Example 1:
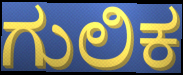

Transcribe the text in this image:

ಗುಲಿಕ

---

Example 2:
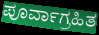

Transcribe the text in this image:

ಪೂರ್ವಾಗ್ರಹಿತ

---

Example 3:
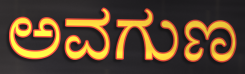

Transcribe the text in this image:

ಅವಗುಣ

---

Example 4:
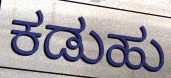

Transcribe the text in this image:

ಕಡುಹು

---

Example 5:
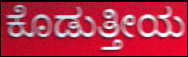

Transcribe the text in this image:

ಕೊಡುತ್ತೀಯ